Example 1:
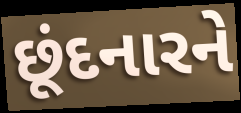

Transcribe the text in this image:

છૂંદનારને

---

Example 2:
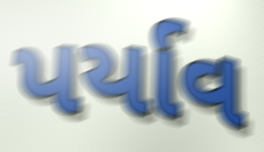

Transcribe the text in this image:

પર્યાવ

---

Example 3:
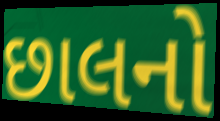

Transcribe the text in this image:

છાલનો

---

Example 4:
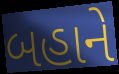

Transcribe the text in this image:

બહાને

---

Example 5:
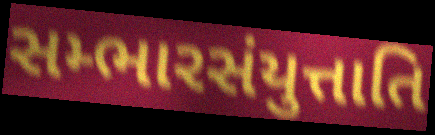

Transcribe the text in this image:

સમ્ભારસંયુત્તાતિ